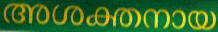
അശക്തനായ